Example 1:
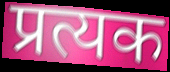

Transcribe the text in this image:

प्रत्यक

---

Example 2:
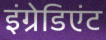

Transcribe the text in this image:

इंग्रेडिएंट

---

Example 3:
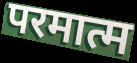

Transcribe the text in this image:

परमात्म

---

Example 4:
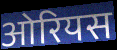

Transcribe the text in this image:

ओरियस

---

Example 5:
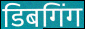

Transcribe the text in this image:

डिबगिंग